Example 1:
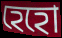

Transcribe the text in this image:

হেহো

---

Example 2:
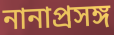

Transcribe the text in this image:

নানাপ্রসঙ্গ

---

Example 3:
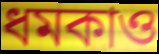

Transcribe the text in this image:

ধমকাও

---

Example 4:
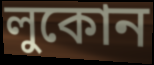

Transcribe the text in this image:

লুকোন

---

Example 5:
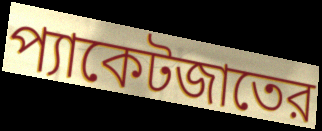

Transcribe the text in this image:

প্যাকেটজাতের